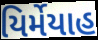
યિર્મેયાહ